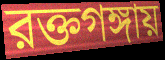
রক্তগঙ্গায়